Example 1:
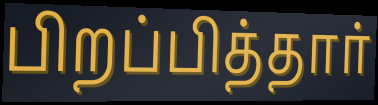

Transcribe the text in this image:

பிறப்பித்தார்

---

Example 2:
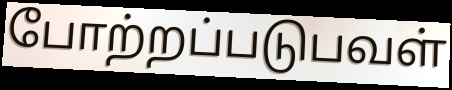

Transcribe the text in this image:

போற்றப்படுபவள்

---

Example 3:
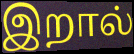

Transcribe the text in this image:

இறால்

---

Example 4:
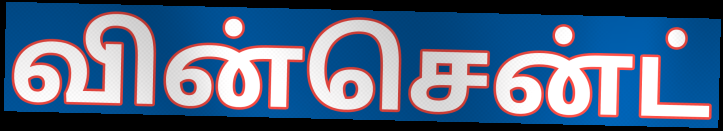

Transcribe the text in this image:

வின்சென்ட்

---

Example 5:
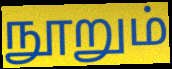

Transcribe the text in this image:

நூறும்